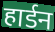
हार्डन